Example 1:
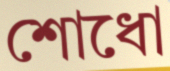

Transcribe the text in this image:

শোধো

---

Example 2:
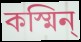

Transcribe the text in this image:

কস্মিন্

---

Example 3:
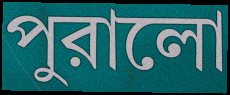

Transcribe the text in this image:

পুরালো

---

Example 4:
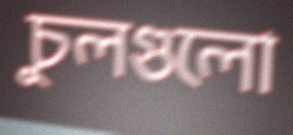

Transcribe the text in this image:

চুলগুলো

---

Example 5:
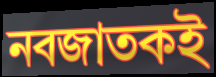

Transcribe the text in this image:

নবজাতকই